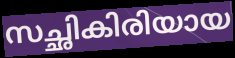
സച്ഛികിരിയായ